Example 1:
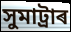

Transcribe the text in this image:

সুমাট্ৰাৰ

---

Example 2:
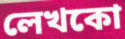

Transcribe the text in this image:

লেখকো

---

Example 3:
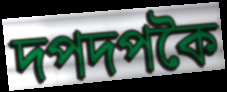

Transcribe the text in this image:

দপদপকৈ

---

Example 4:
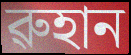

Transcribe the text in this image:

ৱুহান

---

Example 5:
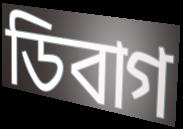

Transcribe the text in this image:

ডিবাগ